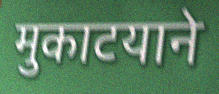
मुकाटयाने